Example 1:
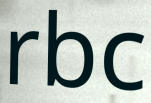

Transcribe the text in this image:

rbc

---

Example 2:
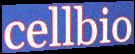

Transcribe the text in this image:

cellbio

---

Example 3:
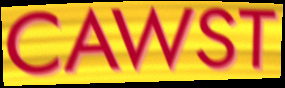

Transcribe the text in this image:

CAWST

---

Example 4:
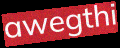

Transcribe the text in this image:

awegthi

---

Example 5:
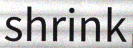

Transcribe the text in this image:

shrink